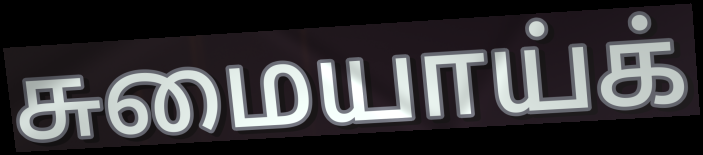
சுமையாய்க்